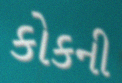
કોકની